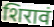
शिरावं